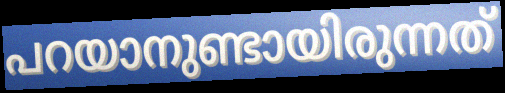
പറയാനുണ്ടായിരുന്നത്